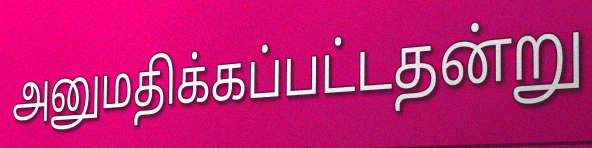
அனுமதிக்கப்பட்டதன்று